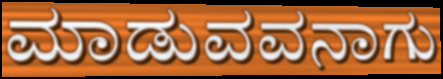
ಮಾಡುವವನಾಗು